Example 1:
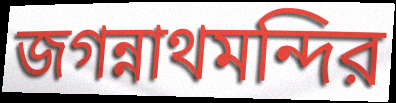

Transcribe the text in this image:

জগন্নাথমন্দির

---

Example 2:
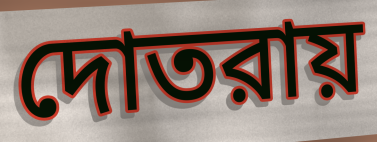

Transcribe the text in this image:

দোতরায়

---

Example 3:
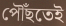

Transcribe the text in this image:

পৌঁছতেই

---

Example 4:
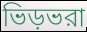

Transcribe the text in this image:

ভিড়ভরা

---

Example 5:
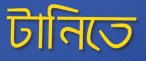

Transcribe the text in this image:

টানিতে